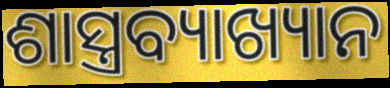
ଶାସ୍ତ୍ରବ୍ୟାଖ୍ୟାନ